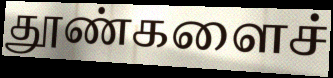
தூண்களைச்